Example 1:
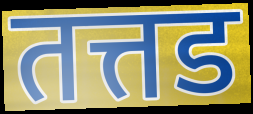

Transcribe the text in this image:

तत्तड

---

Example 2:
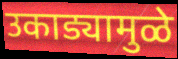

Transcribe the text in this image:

उकाड्यामुळे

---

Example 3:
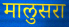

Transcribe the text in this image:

मालुसरा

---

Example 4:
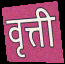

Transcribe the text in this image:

वृत्ती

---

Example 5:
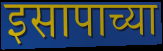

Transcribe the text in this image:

इसापाच्या